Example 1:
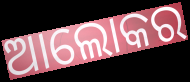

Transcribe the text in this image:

ଆଲୋକର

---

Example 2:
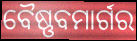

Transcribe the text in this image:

ବୈଷ୍ଣବମାର୍ଗର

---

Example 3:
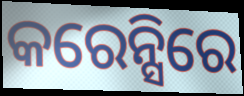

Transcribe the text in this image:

କରେନ୍ସିରେ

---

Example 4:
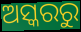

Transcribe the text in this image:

ଅସ୍କରରୁ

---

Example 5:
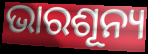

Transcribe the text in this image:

ଭାରଶୂନ୍ୟ